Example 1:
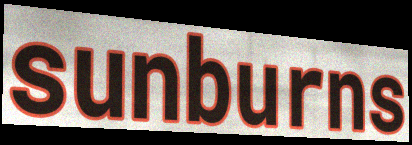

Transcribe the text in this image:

sunburns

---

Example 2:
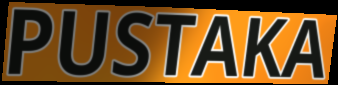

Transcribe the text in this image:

PUSTAKA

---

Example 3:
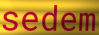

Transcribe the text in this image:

sedem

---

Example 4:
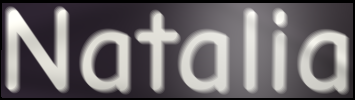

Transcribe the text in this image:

Natalia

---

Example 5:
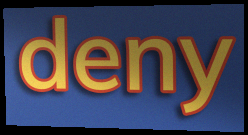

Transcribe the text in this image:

deny